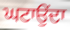
ਘਟਾਉਂਦਾ